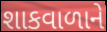
શાકવાળાને